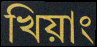
খিয়াং